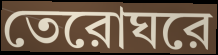
তেরোঘরে